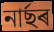
নাৰ্ছৰ